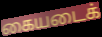
கையடைக்